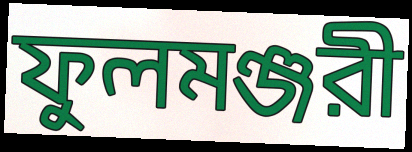
ফুলমঞ্জরী